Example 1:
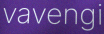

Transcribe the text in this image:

vavengi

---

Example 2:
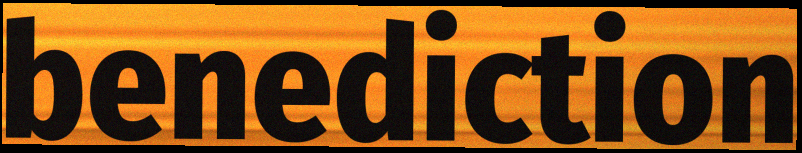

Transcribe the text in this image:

benediction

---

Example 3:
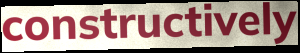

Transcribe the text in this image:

constructively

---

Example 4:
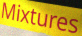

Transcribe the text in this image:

Mixtures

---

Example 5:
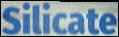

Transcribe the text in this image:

Silicate